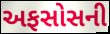
અફસોસની